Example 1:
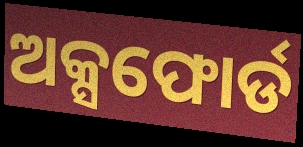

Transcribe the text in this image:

ଅକ୍ସଫୋର୍ଡ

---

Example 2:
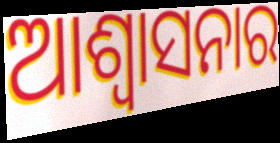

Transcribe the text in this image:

ଆଶ୍ୱାସନାର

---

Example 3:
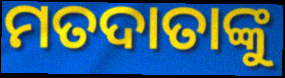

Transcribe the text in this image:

ମତଦାତାଙ୍କୁ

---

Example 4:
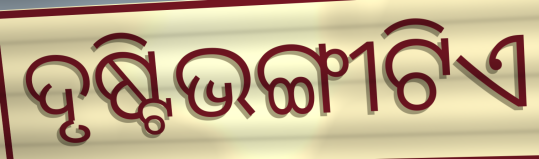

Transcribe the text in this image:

ଦୃଷ୍ଟିଭଙ୍ଗୀଟିଏ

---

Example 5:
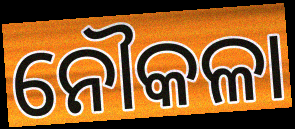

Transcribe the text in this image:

ନୌକଳା